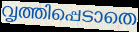
വൃത്തിപ്പെടാതെ